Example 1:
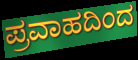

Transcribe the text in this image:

ಪ್ರವಾಹದಿಂದ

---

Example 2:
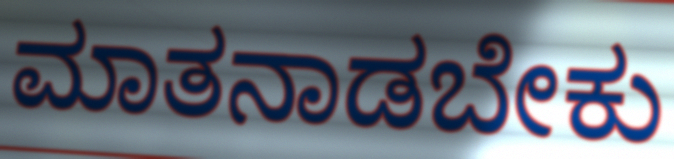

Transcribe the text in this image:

ಮಾತನಾಡಬೇಕು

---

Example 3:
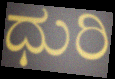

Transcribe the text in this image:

ಧುರಿ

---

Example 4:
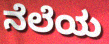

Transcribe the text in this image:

ನೆಲೆಯ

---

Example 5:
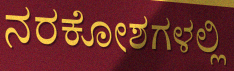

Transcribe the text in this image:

ನರಕೋಶಗಳಲ್ಲಿ